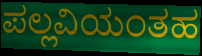
ಪಲ್ಲವಿಯಂತಹ